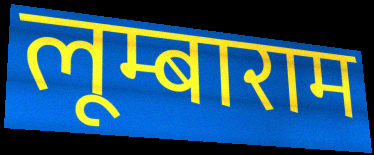
लूम्बाराम